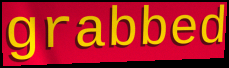
grabbed